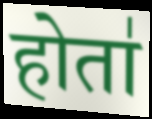
होता॑